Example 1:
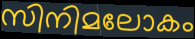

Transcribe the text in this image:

സിനിമലോകം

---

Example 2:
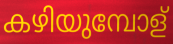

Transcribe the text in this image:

കഴിയുമ്പോള്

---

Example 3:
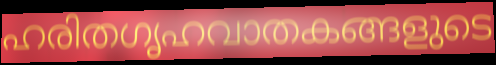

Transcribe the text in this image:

ഹരിതഗൃഹവാതകങ്ങളുടെ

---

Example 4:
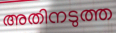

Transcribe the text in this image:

അതിനടുത്ത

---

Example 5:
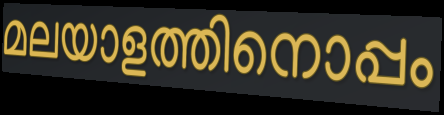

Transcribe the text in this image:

മലയാളത്തിനൊപ്പം